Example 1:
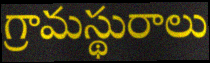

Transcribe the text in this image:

గ్రామస్థురాలు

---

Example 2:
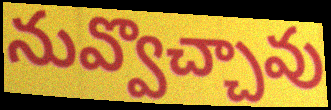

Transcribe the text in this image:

నువ్వొచ్చావు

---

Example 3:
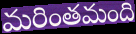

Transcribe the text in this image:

మరింతమంది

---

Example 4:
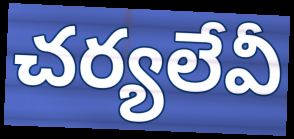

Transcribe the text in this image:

చర్యలేవీ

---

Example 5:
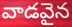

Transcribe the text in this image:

వాడవైన